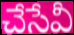
చేసేవీ